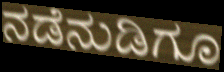
ನಡೆನುಡಿಗೂ